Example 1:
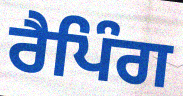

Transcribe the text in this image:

ਰੈਪਿੰਗ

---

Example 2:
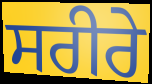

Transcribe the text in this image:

ਸਰੀਰੇ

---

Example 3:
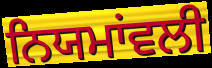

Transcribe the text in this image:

ਨਿਯਮਾਂਵਲੀ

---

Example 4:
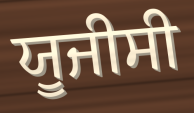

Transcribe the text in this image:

ਯੂਜੀਸੀ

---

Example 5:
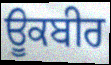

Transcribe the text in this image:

ਊਕਬੀਰ